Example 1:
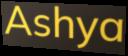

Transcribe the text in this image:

Ashya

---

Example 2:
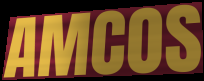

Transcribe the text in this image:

AMCOS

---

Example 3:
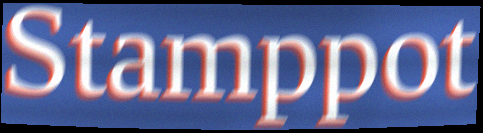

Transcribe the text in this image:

Stamppot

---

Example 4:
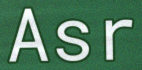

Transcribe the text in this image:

Asr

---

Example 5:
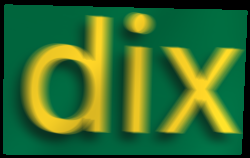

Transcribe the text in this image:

dix